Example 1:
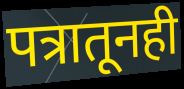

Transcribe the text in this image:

पत्रातूनही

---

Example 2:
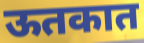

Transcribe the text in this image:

ऊतकात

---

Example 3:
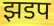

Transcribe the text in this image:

झडप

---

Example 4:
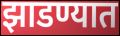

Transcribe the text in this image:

झाडण्यात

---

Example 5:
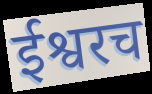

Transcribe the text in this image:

ईश्वरच